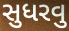
સુધરવુ